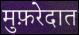
मुफ़रेदात